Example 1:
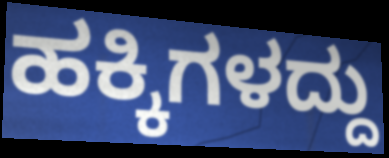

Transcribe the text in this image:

ಹಕ್ಕಿಗಳದ್ದು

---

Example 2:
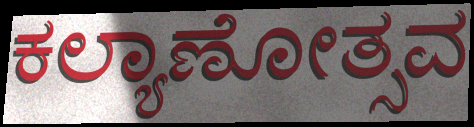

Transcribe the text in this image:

ಕಲ್ಯಾಣೋತ್ಸವ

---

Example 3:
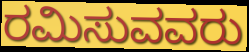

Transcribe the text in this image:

ರಮಿಸುವವರು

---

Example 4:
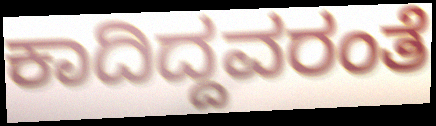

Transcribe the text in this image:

ಕಾದಿದ್ದವರಂತೆ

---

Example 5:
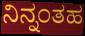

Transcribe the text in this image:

ನಿನ್ನಂತಹ